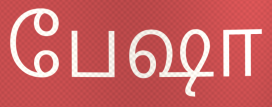
பேஷா